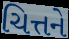
ચિત્તને